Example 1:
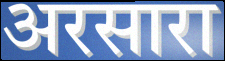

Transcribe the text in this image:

अरसारा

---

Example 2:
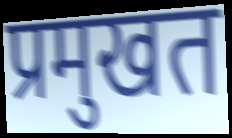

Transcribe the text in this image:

प्रमुखत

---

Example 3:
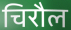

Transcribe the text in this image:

चिरौल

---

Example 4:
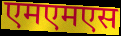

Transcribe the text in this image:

एमएमएस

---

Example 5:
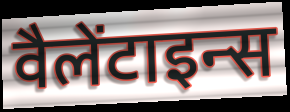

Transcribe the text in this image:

वैलेंटाइन्स